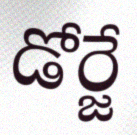
డోర్జే